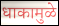
धाकामुळे